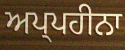
ਅਪ੍ਪਹੀਨਾ